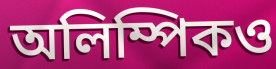
অলিম্পিকও